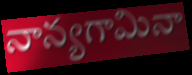
నాన్యగామినా